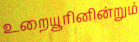
உறையூரினின்றும்